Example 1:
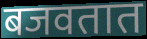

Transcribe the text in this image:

बजवतात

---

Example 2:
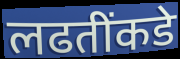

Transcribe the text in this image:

लढतींकडे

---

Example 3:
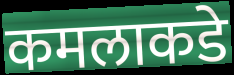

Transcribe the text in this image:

कमलाकडे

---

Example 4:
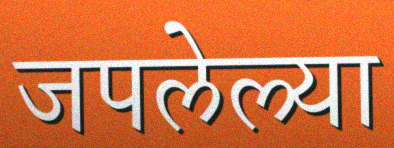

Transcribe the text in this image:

जपलेल्या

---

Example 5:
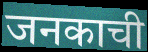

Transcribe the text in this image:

जनकाची